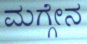
ಮಗ್ಗೇನ